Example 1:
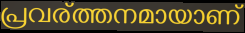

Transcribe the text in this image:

പ്രവര്ത്തനമായാണ്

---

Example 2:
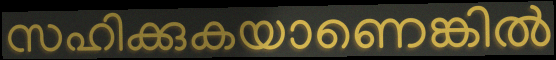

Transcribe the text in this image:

സഹിക്കുകയാണെങ്കിൽ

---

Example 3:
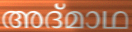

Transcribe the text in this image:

അദ്മാഥ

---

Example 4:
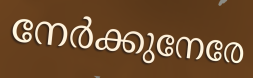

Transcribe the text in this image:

നേർക്കുനേരേ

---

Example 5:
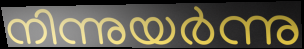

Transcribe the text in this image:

നിന്നുയർന്നു